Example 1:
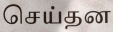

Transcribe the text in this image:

செய்தன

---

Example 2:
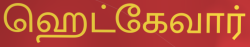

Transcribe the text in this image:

ஹெட்கேவார்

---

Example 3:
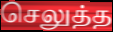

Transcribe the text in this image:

செலுத்த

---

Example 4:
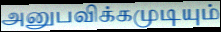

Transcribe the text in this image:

அனுபவிக்கமுடியும்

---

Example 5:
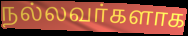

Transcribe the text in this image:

நல்லவர்களாக